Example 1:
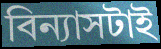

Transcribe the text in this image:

বিন্যাসটাই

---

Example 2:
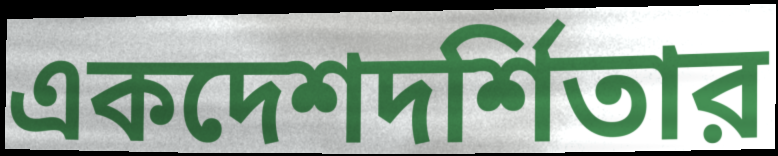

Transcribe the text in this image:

একদেশদর্শিতার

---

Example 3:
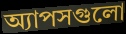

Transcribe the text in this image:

অ্যাপসগুলো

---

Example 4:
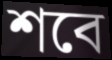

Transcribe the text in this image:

শবে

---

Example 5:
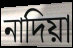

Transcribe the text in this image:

নাদিয়া